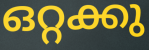
ഒറ്റക്കു